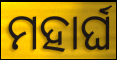
ମହାର୍ଘ